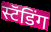
स्टॅडिंग